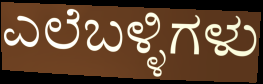
ಎಲೆಬಳ್ಳಿಗಳು